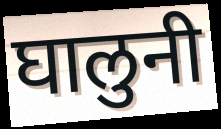
घालुनी